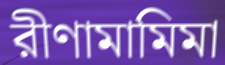
রীণামামিমা